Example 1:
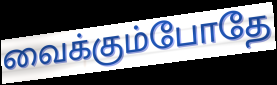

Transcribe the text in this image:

வைக்கும்போதே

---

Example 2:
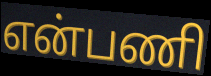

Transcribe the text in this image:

என்பணி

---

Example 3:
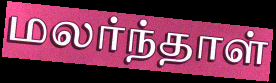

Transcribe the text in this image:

மலர்ந்தாள்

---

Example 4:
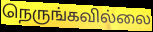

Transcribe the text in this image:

நெருங்கவில்லை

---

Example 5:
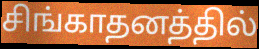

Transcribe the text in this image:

சிங்காதனத்தில்